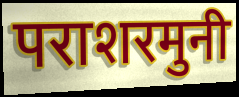
पराशरमुनी